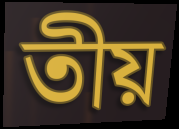
তীয়